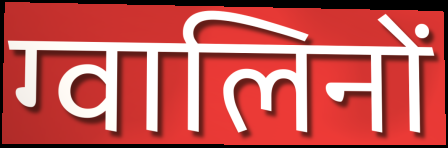
ग्वालिनों